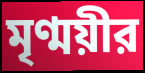
মৃণ্ময়ীর